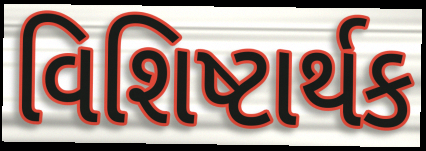
વિશિષ્ટાર્થક